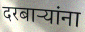
दरबाऱ्यांना